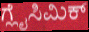
ಗ್ಲೈಸಿಮಿಕ್